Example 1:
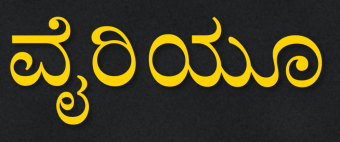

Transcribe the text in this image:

ವೈರಿಯೂ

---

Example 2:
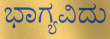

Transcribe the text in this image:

ಭಾಗ್ಯವಿದು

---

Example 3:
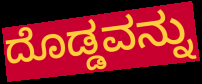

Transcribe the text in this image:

ದೊಡ್ಡವನ್ನು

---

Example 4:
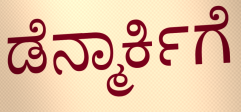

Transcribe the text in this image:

ಡೆನ್ಮಾರ್ಕಿಗೆ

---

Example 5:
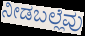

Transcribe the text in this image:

ನೀಡಬಲ್ಲೆವು